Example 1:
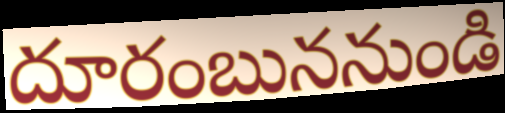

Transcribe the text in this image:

దూరంబుననుండి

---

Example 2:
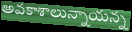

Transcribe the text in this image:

అవకాశాలున్నాయన్న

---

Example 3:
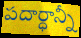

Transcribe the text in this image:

పదార్ధాన్నీ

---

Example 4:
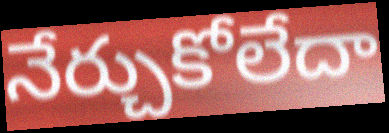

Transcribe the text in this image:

నేర్చుకోలేదా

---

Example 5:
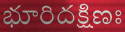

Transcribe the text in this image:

భూరిదక్షిణః